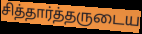
சித்தார்த்தருடைய